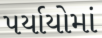
પર્યાયોમાં